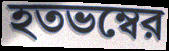
হতভম্বের